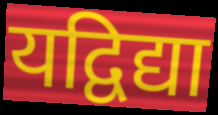
यद्विद्या